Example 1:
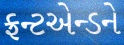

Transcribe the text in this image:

ફ્રન્ટએન્ડને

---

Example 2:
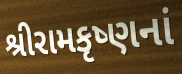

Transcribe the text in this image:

શ્રીરામકૃષ્ણનાં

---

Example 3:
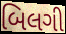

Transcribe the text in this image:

બિલગી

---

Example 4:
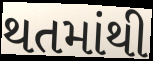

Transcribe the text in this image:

થતમાંથી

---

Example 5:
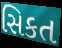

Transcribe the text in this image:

સિકત